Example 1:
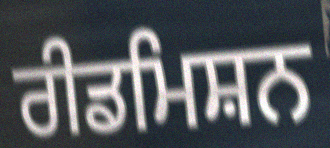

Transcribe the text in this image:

ਰੀਡਮਿਸ਼ਨ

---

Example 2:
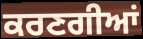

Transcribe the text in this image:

ਕਰਣਗੀਆਂ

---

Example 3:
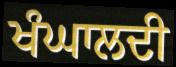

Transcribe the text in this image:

ਖੰਘਾਲਦੀ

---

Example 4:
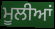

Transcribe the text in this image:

ਮੂਲੀਆਂ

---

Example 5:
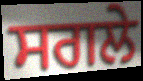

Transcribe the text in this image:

ਸਗਲੇ